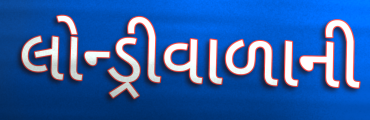
લોન્ડ્રીવાળાની